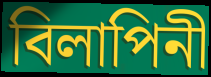
বিলাপিনী